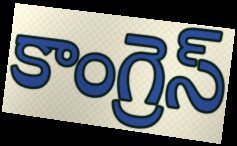
కాంగ్రెస్